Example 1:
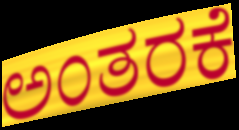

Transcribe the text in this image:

ಅಂತರಕೆ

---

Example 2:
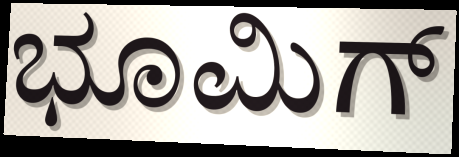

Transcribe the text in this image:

ಭೂಮಿಗ್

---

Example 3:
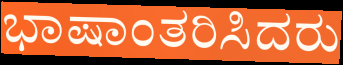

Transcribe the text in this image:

ಭಾಷಾಂತರಿಸಿದರು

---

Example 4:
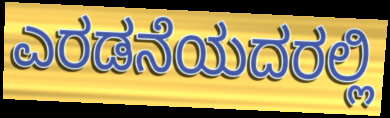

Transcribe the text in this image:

ಎರಡನೆಯದರಲ್ಲಿ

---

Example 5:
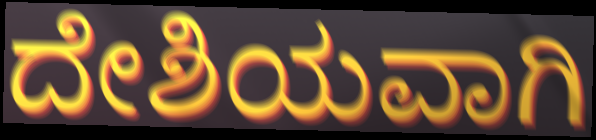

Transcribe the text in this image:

ದೇಶಿಯವಾಗಿ